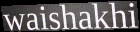
waishakhi